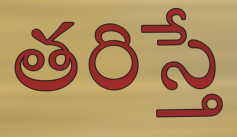
తరిస్తే